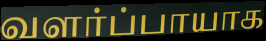
வளர்ப்பாயாக